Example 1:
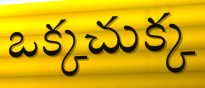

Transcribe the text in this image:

ఒక్కచుక్క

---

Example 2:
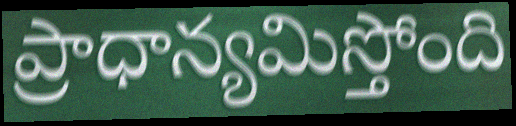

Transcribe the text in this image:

ప్రాధాన్యమిస్తోంది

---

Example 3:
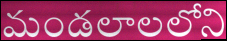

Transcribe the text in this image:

మండలాలలోని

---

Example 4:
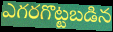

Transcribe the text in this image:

ఎగరగొట్టబడిన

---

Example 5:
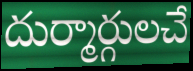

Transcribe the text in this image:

దుర్మార్గులచే